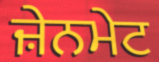
ਜ਼ੇਨਮੇਟ